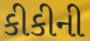
કીકીની